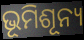
ଭୂମିଶୂନ୍ୟ